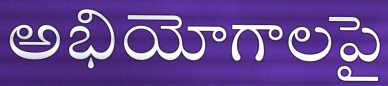
అభియోగాలపై